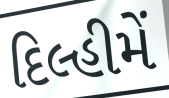
દિલ્હીમેં